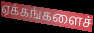
ஏக்கங்களைச்